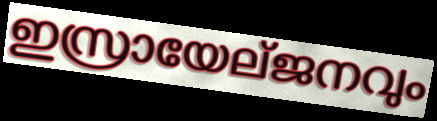
ഇസ്രായേല്ജനവും